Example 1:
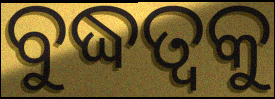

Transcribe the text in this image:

ବୁଦ୍ଧତ୍ଵକୁ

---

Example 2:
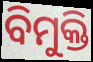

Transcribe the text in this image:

ବିମୁକ୍ତି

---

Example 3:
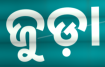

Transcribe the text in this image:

ଜୁଡ଼ା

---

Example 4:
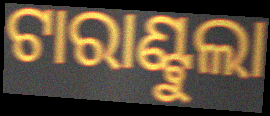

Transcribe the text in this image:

ଟାରାଣ୍ଟୁଲା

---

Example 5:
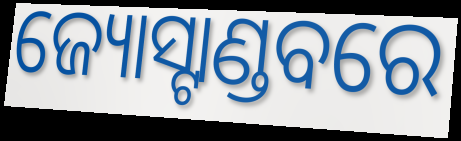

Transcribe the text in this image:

ଜ୍ୟୋସ୍ଟାଣ୍ଡବରେ